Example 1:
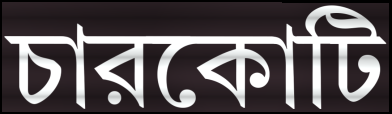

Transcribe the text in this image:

চারকোটি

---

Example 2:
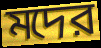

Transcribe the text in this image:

মদের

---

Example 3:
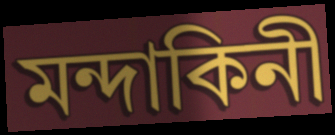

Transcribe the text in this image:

মন্দাকিনী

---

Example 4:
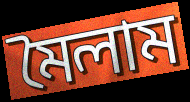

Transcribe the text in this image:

মৈলাম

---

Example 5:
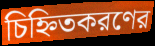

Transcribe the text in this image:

চিহ্নিতকরণের